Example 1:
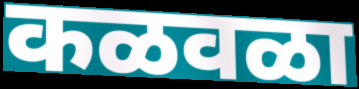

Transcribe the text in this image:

कळवळा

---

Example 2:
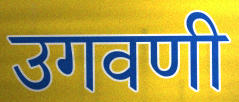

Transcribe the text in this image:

उगवणी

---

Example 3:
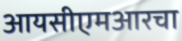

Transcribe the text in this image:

आयसीएमआरचा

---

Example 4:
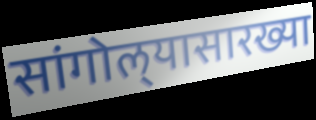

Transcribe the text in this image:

सांगोल्यासारख्या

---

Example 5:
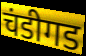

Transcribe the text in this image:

चंडीगड